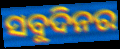
ସବୁଦିନର